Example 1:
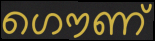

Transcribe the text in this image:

ഗൌണ്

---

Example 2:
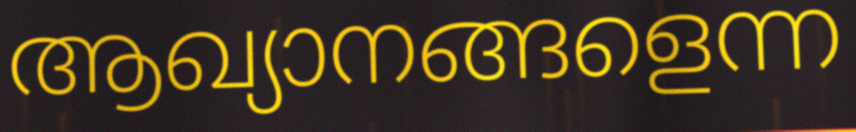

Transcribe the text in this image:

ആഖ്യാനങ്ങളെന്ന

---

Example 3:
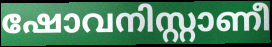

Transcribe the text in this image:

ഷോവനിസ്റ്റാണീ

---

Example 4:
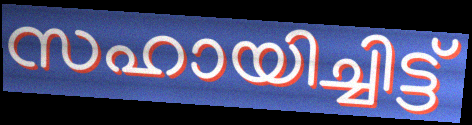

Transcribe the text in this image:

സഹായിച്ചിട്ട്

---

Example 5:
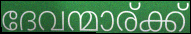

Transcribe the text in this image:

ദേവന്മാര്ക്ക്